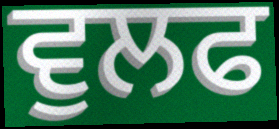
ਵੁਲਫ